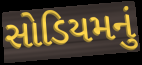
સોડિયમનું